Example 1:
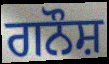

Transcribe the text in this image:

ਗਨੌਸ਼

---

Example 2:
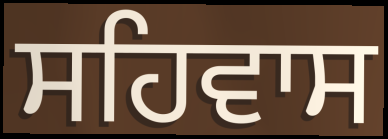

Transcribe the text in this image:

ਸਹਿਵਾਸ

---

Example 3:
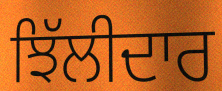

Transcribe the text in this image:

ਝਿੱਲੀਦਾਰ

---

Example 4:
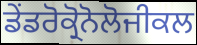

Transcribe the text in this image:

ਡੇਂਡਰੋਕ੍ਰੋਨੋਲੋਜੀਕਲ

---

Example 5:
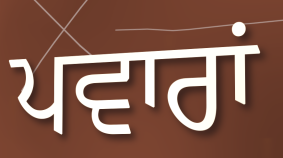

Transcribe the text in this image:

ਪਵਾਰਾਂ